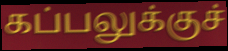
கப்பலுக்குச்